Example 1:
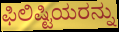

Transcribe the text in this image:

ಫಿಲಿಷ್ಟಿಯರನ್ನು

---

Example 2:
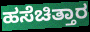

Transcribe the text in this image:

ಹಸೆಚಿತ್ತಾರ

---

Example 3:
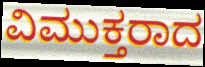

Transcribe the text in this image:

ವಿಮುಕ್ತರಾದ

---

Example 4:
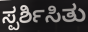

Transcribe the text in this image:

ಸ್ಪರ್ಶಿಸಿತು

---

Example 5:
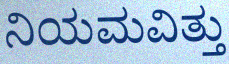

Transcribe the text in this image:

ನಿಯಮವಿತ್ತು